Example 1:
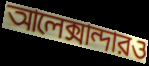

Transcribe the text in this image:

আলেক্সান্দারও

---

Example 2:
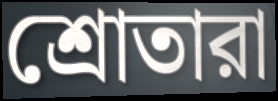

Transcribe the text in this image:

শ্রোতারা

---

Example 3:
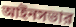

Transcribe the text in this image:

আইনসভার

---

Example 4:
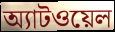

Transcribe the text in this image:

অ্যাটওয়েল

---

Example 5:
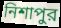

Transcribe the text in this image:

নিশাপুর